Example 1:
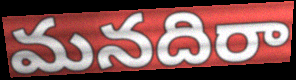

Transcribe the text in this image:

మనదిరా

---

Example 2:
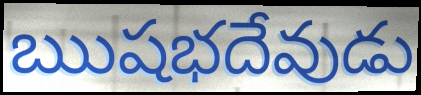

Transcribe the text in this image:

ఋషభదేవుడు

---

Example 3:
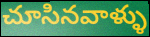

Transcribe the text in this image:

చూసినవాళ్ళు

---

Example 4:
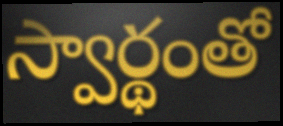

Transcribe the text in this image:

స్వార్థంతో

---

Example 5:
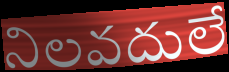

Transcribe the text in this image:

నిలవదులే